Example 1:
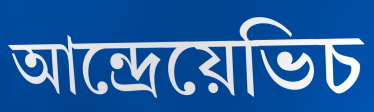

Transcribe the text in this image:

আন্দ্রেয়েভিচ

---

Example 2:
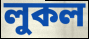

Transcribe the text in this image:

লুকল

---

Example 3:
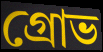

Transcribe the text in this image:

গ্রোভ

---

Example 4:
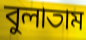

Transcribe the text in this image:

বুলাতাম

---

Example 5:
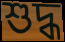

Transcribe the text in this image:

শুদ্ধ